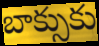
బాక్సుకు